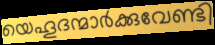
യെഹൂദന്മാർക്കുവേണ്ടി